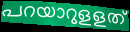
പറയാറുളളത്